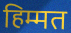
हिम्‍मत